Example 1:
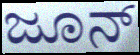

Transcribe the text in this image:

ಜೂನ್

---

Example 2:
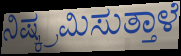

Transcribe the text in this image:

ನಿಷ್ಕ್ರಮಿಸುತ್ತಾಳೆ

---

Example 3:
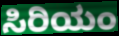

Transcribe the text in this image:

ಸಿರಿಯಂ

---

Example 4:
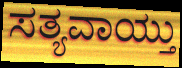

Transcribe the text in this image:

ಸತ್ಯವಾಯ್ತು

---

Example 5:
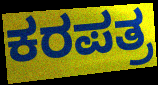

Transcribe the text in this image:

ಕರಪತ್ರ